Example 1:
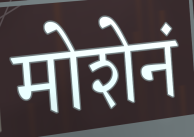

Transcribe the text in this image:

मोशेनं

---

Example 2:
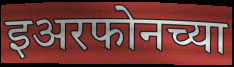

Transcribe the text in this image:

इअरफोनच्या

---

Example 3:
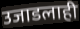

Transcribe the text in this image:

उजाडलाही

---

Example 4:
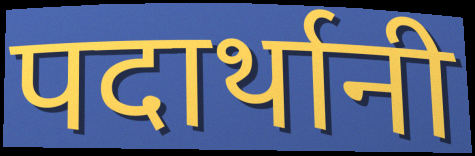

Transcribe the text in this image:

पदार्थानी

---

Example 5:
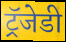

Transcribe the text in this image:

ट्रॅजेडी